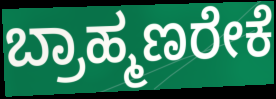
ಬ್ರಾಹ್ಮಣರೇಕೆ